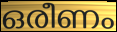
ഒരീണം